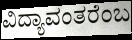
ವಿದ್ಯಾವಂತರೆಂಬ